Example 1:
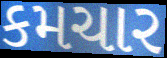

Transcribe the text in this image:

કમચાર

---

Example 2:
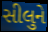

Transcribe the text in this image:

સીલુને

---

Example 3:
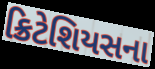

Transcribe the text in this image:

ક્રિટેશિયસના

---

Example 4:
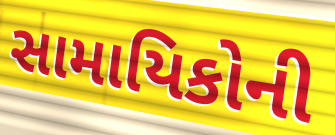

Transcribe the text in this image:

સામાયિકોની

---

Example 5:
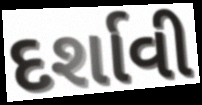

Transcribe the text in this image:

દર્શાવી